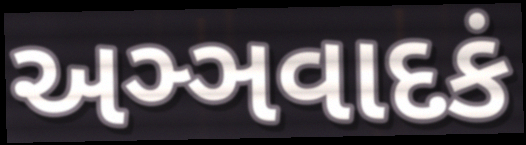
અઞ્ઞવાદકં